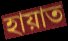
হায়াত